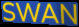
SWAN